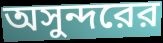
অসুন্দরের